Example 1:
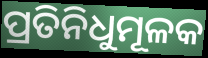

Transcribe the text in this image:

ପ୍ରତିନିଧୁମୂଳକ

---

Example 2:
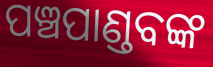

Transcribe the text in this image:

ପଞ୍ଚପାଣ୍ଡବଙ୍କ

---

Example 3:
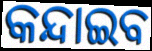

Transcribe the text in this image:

କନ୍ଦାଇବ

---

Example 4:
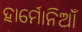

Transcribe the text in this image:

ହାର୍ମୋନିଆଁ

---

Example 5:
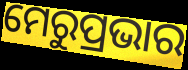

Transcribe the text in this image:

ମେରୁପ୍ରଭାର